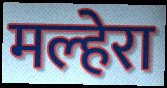
मल्हेरा